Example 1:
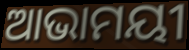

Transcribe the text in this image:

ଆଭାମୟୀ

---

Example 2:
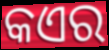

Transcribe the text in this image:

କଏର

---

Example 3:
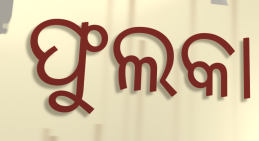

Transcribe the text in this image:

ଫୁଲକା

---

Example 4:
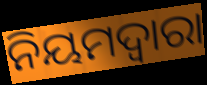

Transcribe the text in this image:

ନିୟମଦ୍ଵାରା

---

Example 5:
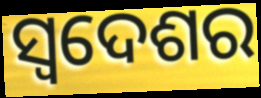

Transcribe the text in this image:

ସ୍ଵଦେଶର